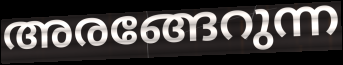
അരങ്ങേറുന്ന